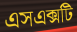
এসএক্সটি